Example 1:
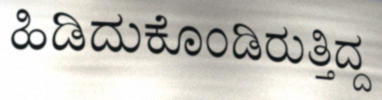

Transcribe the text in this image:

ಹಿಡಿದುಕೊಂಡಿರುತ್ತಿದ್ದ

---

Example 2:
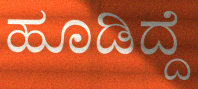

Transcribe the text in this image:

ಹೂಡಿದ್ದೆ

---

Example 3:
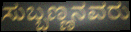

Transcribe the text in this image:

ಸುಬ್ಬಣ್ಣನವರು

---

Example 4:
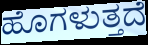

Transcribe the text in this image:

ಹೊಗಳುತ್ತದೆ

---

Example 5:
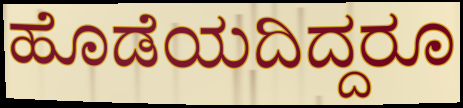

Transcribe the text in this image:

ಹೊಡೆಯದಿದ್ದರೂ